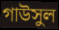
গাউসুল